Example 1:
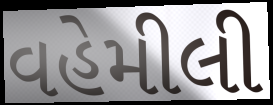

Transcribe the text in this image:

વહેમીલી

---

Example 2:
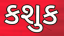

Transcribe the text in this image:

કશુક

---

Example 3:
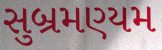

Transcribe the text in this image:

સુબ્રમણ્યમ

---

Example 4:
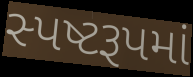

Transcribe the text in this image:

સ્પષ્ટરૂપમાં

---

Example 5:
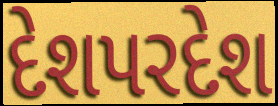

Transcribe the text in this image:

દેશપરદેશ